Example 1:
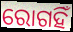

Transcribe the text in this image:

ରୋଗହିଁ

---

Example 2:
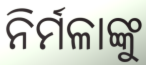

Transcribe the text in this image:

ନିର୍ମଳାଙ୍କୁ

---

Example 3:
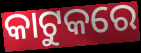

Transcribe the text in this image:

କାଟୁକରେ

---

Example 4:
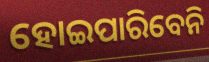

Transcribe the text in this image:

ହୋଇପାରିବେନି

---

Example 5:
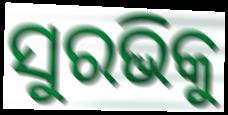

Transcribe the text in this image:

ସୁରଭିକୁ